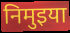
निमुइया